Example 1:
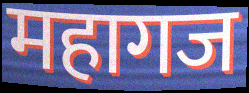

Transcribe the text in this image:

महागज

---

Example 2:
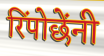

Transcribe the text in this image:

रिंपोछेंनी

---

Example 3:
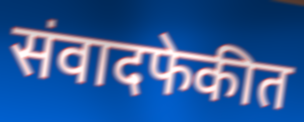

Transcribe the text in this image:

संवादफेकीत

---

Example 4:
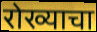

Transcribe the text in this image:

रोख्याचा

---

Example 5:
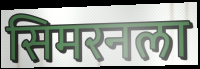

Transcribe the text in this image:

सिमरनला